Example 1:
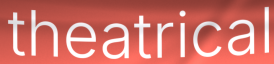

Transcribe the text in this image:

theatrical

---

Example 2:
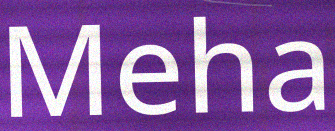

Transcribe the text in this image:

Meha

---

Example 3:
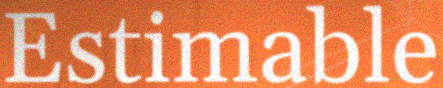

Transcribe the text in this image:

Estimable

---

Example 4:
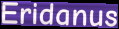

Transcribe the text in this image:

Eridanus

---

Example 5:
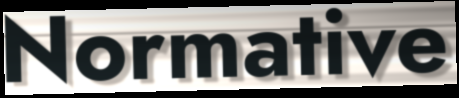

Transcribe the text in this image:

Normative